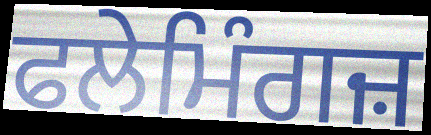
ਫਲੇਮਿੰਗਜ਼